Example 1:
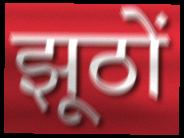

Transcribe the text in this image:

झूठों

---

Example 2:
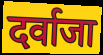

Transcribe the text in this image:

दर्वाजा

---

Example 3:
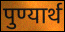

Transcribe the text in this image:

पुण्यार्थ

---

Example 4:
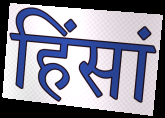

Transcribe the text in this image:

हिंसां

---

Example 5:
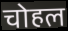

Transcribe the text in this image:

चोहल